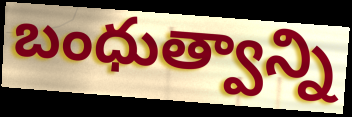
బంధుత్వాన్ని